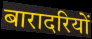
बारादरियों